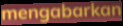
mengabarkan